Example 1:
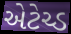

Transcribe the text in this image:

એટેચ્ડ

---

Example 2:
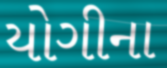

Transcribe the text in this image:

યોગીના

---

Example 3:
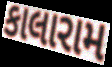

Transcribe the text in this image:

કાલારામ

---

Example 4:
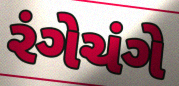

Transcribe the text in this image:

રંગેચંગે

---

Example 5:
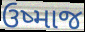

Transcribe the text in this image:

ઉષ્માજ